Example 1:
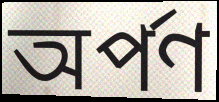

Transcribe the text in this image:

অর্পণ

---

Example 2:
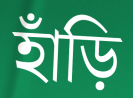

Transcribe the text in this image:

হাঁড়ি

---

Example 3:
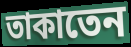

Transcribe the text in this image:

তাকাতেন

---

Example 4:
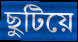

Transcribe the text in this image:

ছুটিয়ে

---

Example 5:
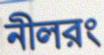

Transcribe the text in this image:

নীলরং